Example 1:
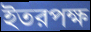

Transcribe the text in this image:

ইতরপক্ষ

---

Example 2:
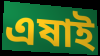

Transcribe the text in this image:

এষাই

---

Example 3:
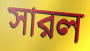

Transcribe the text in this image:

সারল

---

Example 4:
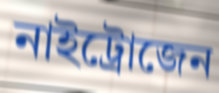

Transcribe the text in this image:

নাইট্রোজেন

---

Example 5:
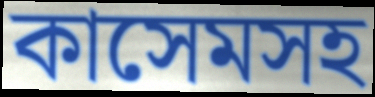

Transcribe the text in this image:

কাসেমসহ